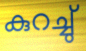
കുറച്ചു്